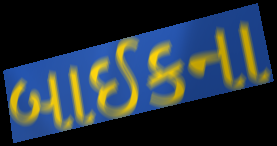
બાઈકના